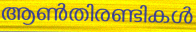
ആൺതിരണ്ടികൾ